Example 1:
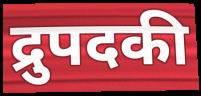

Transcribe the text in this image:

द्रुपदकी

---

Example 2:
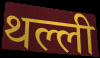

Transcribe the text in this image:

थल्ली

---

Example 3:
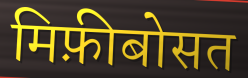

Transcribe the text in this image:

मिफ़ीबोसत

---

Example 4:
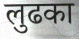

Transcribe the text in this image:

लुढका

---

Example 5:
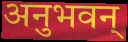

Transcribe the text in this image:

अनुभवन्